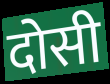
दोसी